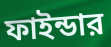
ফাইন্ডার